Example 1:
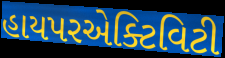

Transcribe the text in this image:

હાયપરએક્ટિવિટી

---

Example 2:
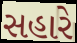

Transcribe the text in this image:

સહારે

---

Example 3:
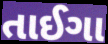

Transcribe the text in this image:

તાઈગા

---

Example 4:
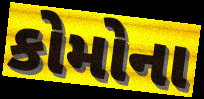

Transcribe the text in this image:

કોમોના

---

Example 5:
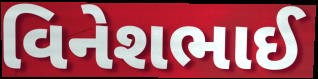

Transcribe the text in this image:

વિનેશભાઈ